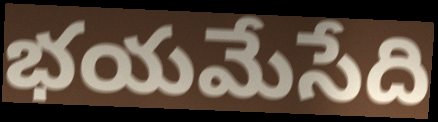
భయమేసేది